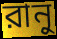
রানু